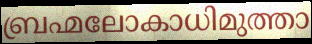
ബ്രഹ്മലോകാധിമുത്താ